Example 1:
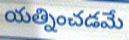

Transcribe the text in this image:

యత్నించడమే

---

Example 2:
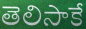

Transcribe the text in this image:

తెలిసాకే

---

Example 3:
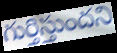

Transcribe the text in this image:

గుర్తిస్తుందని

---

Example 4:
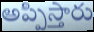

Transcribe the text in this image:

అప్పిస్తారు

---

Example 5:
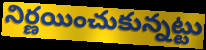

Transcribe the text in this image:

నిర్ణయించుకున్నట్టు